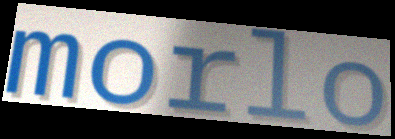
morlo